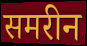
समरीन